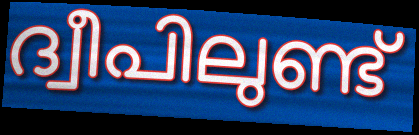
ദ്വീപിലുണ്ട്